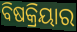
ବିଷକ୍ରିୟାର